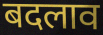
बदलाव